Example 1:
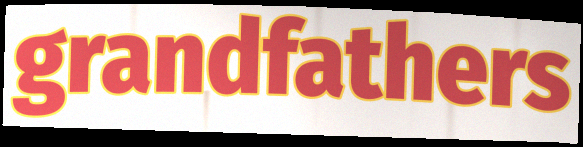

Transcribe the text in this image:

grandfathers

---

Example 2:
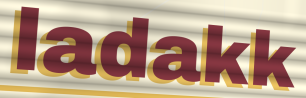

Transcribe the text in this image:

ladakk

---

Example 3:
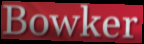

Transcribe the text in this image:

Bowker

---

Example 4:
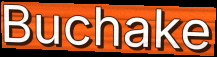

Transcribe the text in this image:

Buchake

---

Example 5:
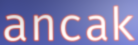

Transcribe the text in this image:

ancak